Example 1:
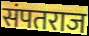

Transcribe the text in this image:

संपतराज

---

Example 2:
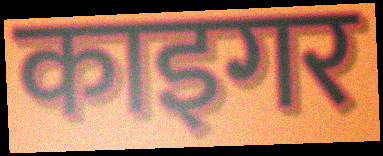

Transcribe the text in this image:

काइगर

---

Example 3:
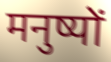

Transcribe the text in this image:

मनुष्यों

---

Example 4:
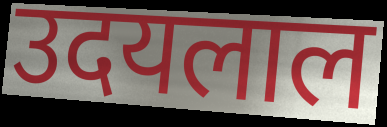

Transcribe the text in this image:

उदयलाल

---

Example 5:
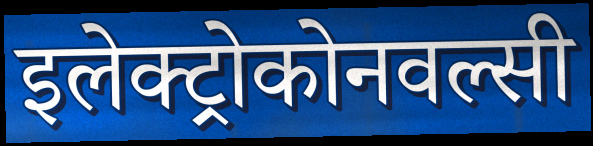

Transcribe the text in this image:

इलेक्ट्रोकोनवल्सी